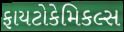
ફાયટોકેમિકલ્સ